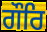
ਗੌਰਿ